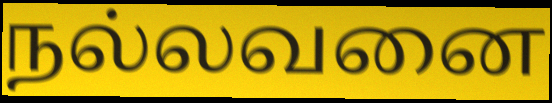
நல்லவனை